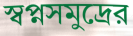
স্বপ্নসমুদ্রের